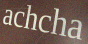
achcha